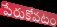
పేరుకోవటం